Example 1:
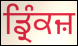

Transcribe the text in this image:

ਡ੍ਰਿੰਕਜ਼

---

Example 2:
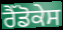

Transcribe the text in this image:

ਰੈੱਡੋਕੇਸ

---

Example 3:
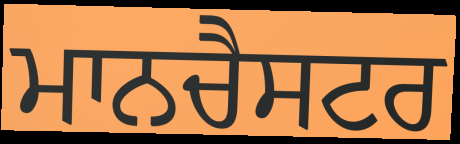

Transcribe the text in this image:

ਮਾਨਚੈਸਟਰ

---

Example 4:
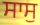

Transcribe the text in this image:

ਸਾਸੁ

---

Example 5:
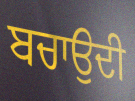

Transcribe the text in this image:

ਬਚਾਉਦੀ